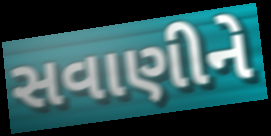
સવાણીને